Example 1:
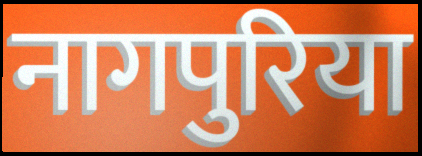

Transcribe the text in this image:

नागपुरिया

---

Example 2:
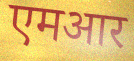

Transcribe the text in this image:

एमआर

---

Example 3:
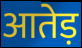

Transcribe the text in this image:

आतेड़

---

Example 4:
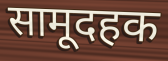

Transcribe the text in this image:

सामूदहक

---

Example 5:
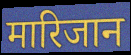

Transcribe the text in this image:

मारिजान